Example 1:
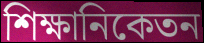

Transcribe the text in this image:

শিক্ষানিকেতন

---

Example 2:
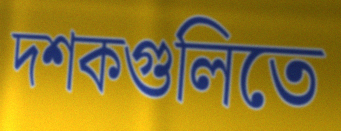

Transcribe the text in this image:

দশকগুলিতে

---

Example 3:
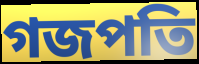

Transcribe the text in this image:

গজপতি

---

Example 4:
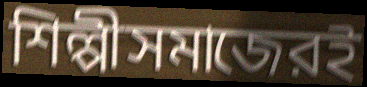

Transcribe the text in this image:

শিল্পীসমাজেরই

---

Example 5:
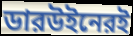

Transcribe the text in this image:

ডারউইনেরই